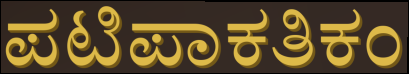
ಪಟಿಪಾಕತಿಕಂ